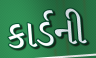
કાર્ડની